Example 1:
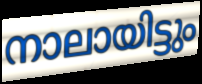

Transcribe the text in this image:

നാലായിട്ടും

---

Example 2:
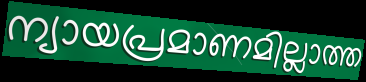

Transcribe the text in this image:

ന്യായപ്രമാണമില്ലാത്ത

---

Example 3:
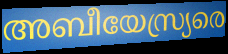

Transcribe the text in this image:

അബീയേസ്ര്യരെ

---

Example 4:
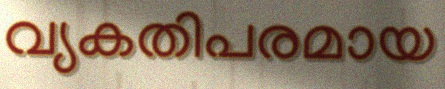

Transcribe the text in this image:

വ്യകതിപരമായ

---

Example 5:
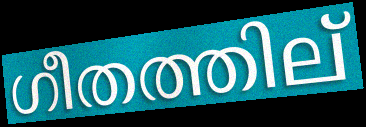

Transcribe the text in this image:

ഗീതത്തില്